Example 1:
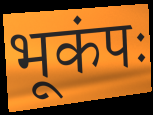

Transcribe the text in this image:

भूकंपः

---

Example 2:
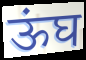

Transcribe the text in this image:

ऊंघ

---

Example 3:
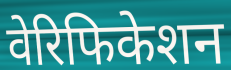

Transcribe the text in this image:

वेरिफिकेशन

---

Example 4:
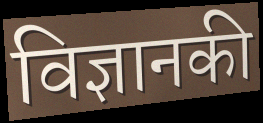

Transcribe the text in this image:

विज्ञानकी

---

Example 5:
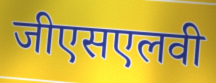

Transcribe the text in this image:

जीएसएलवी